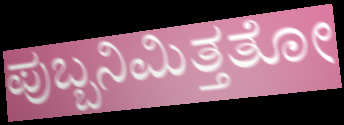
ಪುಬ್ಬನಿಮಿತ್ತತೋ